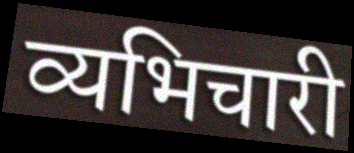
व्यभिचारी